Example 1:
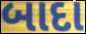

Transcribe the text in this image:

બાદા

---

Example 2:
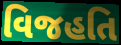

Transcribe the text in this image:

વિજહતિ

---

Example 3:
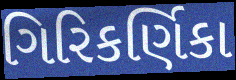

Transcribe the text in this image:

ગિરિકર્ણિકા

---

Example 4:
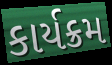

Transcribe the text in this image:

કાર્યક્રમ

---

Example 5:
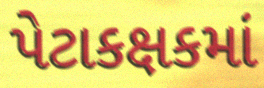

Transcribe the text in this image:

પેટાકક્ષકમાં